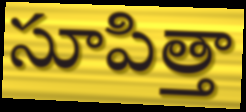
సూపిత్తా